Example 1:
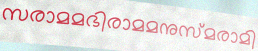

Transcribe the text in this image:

സരാമമഭിരാമമനുസ്മരാമി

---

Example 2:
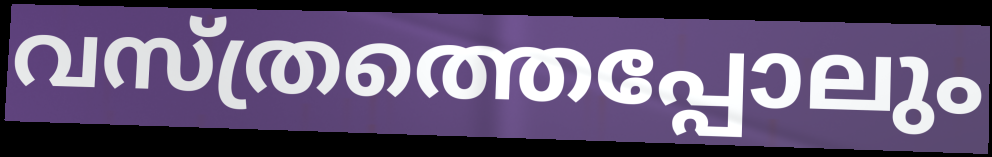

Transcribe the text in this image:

വസ്ത്രത്തെപ്പോലും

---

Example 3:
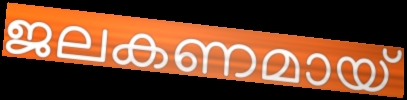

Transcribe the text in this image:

ജലകണമായ്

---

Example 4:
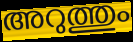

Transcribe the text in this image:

അറുത്തും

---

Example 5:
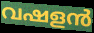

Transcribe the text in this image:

വഷളൻ